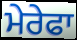
ਮੇਰੇਫਾ